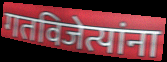
गतविजेत्यांना